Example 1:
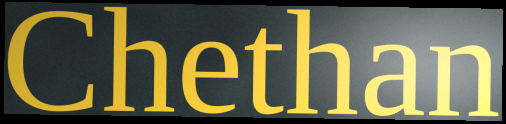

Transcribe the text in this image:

Chethan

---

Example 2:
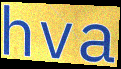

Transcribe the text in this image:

hva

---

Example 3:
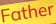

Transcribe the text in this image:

Father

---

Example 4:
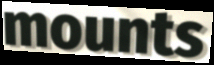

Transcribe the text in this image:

mounts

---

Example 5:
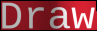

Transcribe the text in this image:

Draw